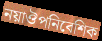
নয়াঔপনিবেশিক